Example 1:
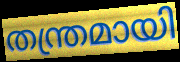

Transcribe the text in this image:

തന്ത്രമായി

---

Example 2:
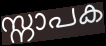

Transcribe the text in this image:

സ്നാപക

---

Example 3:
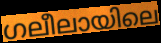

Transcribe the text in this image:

ഗലീലായിലെ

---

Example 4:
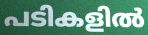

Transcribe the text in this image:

പടികളിൽ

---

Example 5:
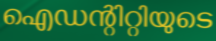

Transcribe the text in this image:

ഐഡന്റിറ്റിയുടെ